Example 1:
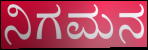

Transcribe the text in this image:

ನಿಗಮನ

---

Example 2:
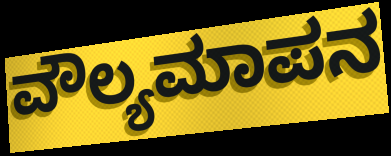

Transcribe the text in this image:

ವೌಲ್ಯಮಾಪನ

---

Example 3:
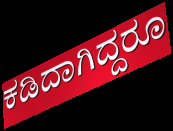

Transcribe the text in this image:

ಕಡಿದಾಗಿದ್ದರೂ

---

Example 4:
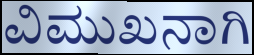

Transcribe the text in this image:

ವಿಮುಖನಾಗಿ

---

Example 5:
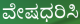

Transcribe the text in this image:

ವೇಷಧರಿಸಿ